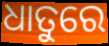
ଧାତୁରେ